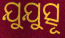
ଯୁଯୁତ୍ସୂ